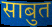
साबुत